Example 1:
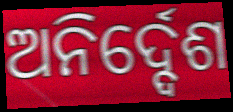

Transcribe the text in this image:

ଅନିର୍ଦ୍ଦେଶ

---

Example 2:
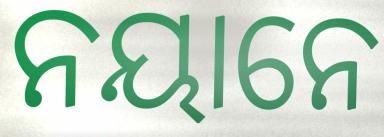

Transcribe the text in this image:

ନୟାନେ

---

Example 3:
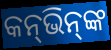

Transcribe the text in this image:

କନ୍‌ଭିନ୍‌ଙ୍କ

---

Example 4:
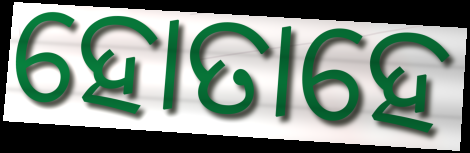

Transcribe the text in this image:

ହୋତାହେ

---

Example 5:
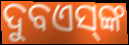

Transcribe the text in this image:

ଦୁବଏସ୍‌ଙ୍କ